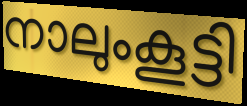
നാലുംകൂട്ടി